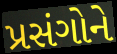
પ્રસંગોને